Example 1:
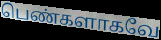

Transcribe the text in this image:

பெண்களாகவே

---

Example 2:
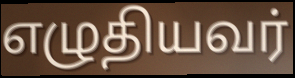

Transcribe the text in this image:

எழுதியவர்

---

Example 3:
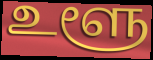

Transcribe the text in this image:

உளூ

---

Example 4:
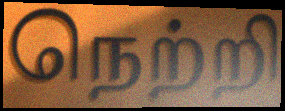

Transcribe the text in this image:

நெற்றி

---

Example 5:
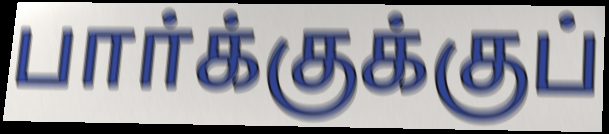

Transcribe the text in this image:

பார்க்குக்குப்